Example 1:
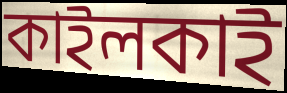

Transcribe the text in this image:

কাইলকাই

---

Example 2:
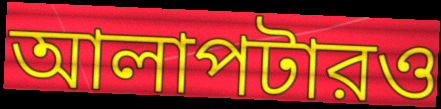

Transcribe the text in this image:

আলাপটারও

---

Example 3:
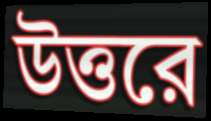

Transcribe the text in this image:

উত্তরে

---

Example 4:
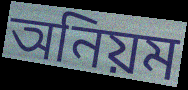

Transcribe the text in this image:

অনিয়ম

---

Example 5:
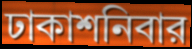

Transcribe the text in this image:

ঢাকাশনিবার